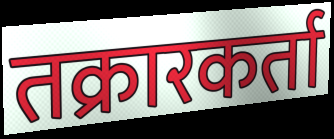
तक्रारकर्ता